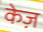
केज़